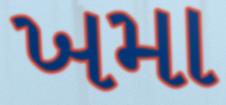
ખમા